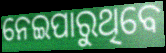
ନେଇପାରୁଥିବେ